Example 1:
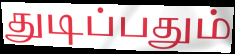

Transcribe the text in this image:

துடிப்பதும்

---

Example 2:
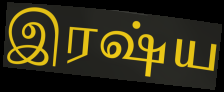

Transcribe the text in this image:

இரஷ்ய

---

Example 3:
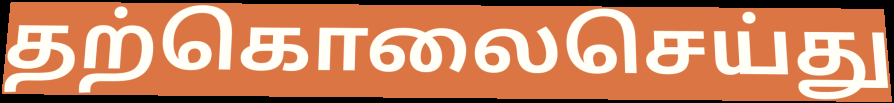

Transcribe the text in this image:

தற்கொலைசெய்து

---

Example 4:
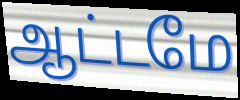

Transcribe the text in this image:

ஆட்டமே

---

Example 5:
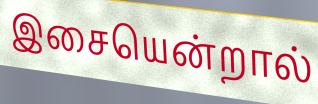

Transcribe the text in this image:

இசையென்றால்